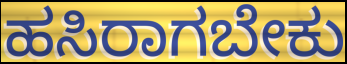
ಹಸಿರಾಗಬೇಕು